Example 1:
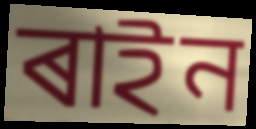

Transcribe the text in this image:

ৰাইন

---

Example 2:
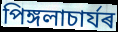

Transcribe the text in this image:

পিঙ্গলাচাৰ্যৰ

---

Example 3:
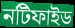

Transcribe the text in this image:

নটিফাইড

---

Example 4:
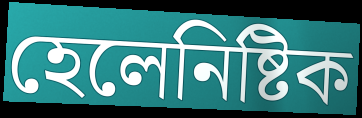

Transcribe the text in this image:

হেলেনিষ্টিক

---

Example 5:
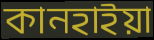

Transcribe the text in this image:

কানহাইয়া